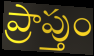
ప్రాప్తుం